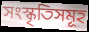
সংস্কৃতিসমূহ